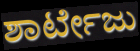
ಶಾರ್ಟೇಜು